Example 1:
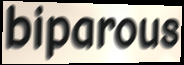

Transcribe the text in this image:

biparous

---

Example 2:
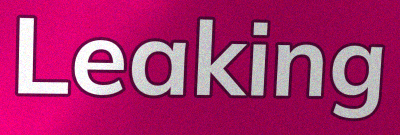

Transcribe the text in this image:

Leaking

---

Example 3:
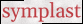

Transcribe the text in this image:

symplast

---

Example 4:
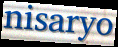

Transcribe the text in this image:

nisaryo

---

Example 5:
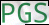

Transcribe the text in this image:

PGS